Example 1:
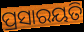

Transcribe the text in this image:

ପ୍ରସାରୟତି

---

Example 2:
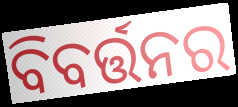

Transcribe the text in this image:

ବିବର୍ତ୍ତନର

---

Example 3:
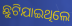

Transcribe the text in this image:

ଛୁଟିଯାଇଥିଲେ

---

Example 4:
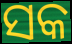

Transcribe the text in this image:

ସକ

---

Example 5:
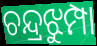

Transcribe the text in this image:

ଚନ୍ଦ୍ରଝୁମ୍ପା